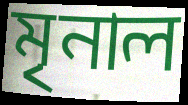
মৃনাল